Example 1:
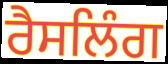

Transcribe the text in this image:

ਰੈਸਲਿੰਗ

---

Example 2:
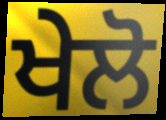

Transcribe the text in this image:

ਖੇਲੋ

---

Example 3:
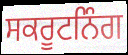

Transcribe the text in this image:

ਸਕਰੂਟਨਿੰਗ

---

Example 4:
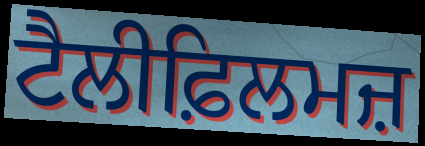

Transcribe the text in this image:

ਟੈਲੀਫ਼ਿਲਮਜ਼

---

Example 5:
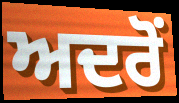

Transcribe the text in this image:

ਅਦਰੋਂ